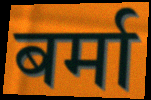
बर्मा